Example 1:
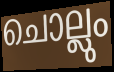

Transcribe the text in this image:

ചൊല്ലും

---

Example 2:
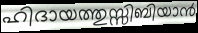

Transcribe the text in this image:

ഹിദായത്തുസ്സിബിയാൻ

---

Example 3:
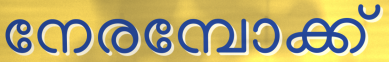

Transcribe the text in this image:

നേരമ്പോക്ക്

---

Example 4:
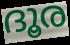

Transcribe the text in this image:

ദൂര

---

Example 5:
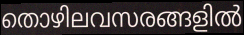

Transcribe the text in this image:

തൊഴിലവസരങ്ങളിൽ